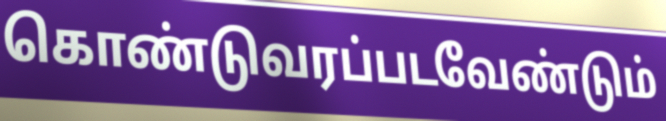
கொண்டுவரப்படவேண்டும்